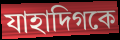
যাহাদিগকে